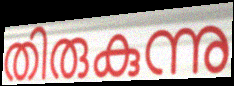
തിരുകുന്നു